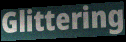
Glittering